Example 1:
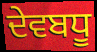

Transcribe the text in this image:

ਦੇਵਬਧੂ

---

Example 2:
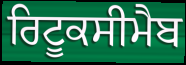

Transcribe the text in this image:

ਰਿਟੂਕਸੀਮੈਬ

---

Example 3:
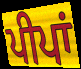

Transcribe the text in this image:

ਪੀਪਾਂ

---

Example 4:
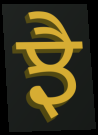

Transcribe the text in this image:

ਝੈ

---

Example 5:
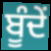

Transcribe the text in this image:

ਬੂੰਦੇਂ